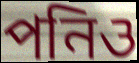
পনিও